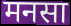
मनसा